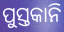
ପୁସ୍ତକାନି